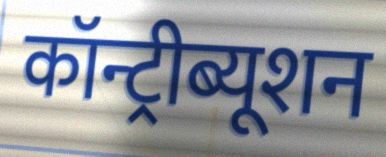
कॉन्ट्रीब्यूशन